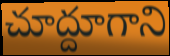
చూద్దూగాని